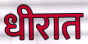
धीरात